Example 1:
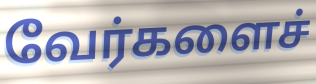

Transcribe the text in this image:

வேர்களைச்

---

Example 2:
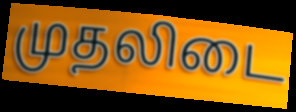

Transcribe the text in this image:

முதலிடை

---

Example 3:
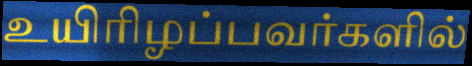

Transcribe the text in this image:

உயிரிழப்பவர்களில்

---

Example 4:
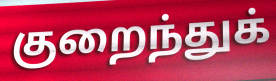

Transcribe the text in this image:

குறைந்துக்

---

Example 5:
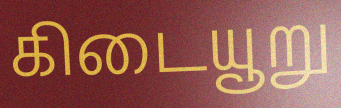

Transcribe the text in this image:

கிடையூறு